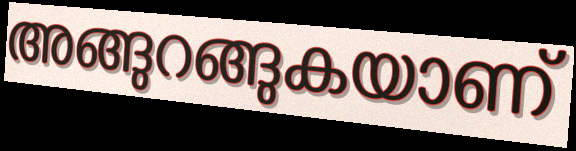
അങ്ങുറങ്ങുകയാണ്